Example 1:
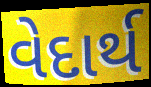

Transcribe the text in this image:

વેદાર્થ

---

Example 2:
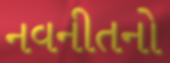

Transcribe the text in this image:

નવનીતનો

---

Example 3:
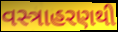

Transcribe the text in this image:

વસ્ત્રાહરણથી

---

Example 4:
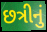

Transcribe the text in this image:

છત્રીનું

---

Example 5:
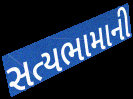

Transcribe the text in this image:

સત્યભામાની